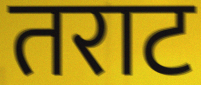
तराट